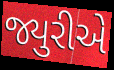
જ્યુરીએ